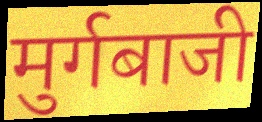
मुर्गबाजी